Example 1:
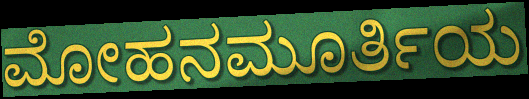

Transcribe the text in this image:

ಮೋಹನಮೂರ್ತಿಯ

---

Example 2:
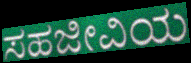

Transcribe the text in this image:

ಸಹಜೀವಿಯ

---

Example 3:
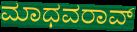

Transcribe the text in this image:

ಮಾಧವರಾವ್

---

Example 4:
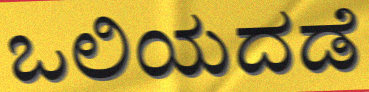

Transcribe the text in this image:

ಒಲಿಯದಡೆ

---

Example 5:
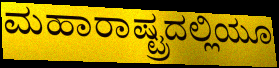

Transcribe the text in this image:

ಮಹಾರಾಷ್ಟ್ರದಲ್ಲಿಯೂ